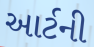
આર્ટની